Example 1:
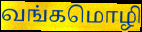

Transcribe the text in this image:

வங்கமொழி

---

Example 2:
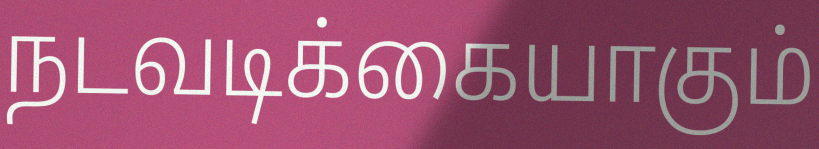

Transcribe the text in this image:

நடவடிக்கையாகும்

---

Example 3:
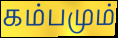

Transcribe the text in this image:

கம்பமும்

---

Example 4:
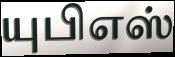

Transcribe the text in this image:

யுபிஎஸ்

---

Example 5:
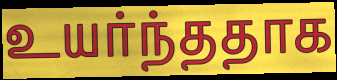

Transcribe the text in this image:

உயர்ந்ததாக